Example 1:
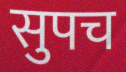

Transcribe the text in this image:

सुपच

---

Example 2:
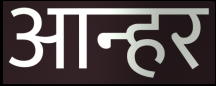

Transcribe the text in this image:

आन्हर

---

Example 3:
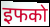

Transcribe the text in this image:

इफको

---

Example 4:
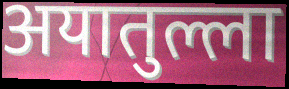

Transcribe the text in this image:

अयातुल्ला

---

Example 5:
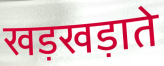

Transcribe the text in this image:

खड़खड़ाते